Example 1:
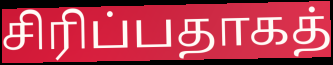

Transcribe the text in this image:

சிரிப்பதாகத்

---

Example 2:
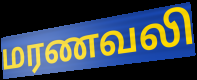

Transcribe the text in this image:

மரணவலி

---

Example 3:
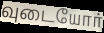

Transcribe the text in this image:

வுடையோர்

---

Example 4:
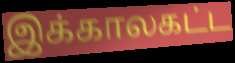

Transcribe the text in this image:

இக்காலகட்ட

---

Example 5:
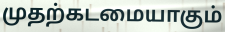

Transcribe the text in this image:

முதற்கடமையாகும்